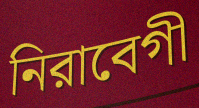
নিরাবেগী